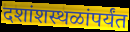
दशांशस्थळांपर्यंत